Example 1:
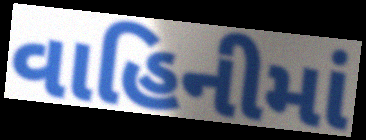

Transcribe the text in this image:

વાહિનીમાં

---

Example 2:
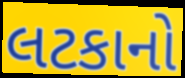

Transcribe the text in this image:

લટકાનો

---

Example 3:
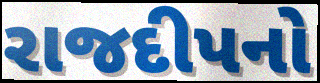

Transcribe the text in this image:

રાજદીપનો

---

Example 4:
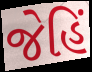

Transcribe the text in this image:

જેહિં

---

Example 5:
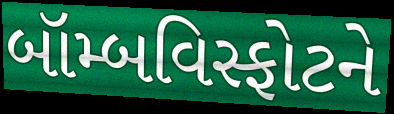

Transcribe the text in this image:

બૉમ્બવિસ્ફોટને